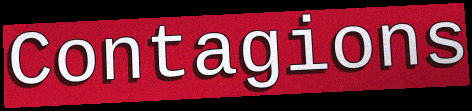
Contagions